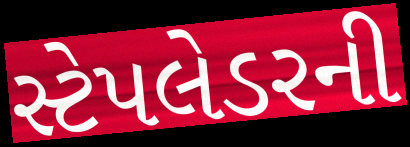
સ્ટેપલેડરની